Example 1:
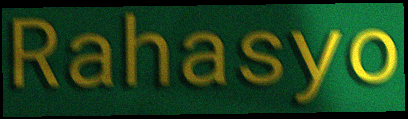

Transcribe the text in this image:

Rahasyo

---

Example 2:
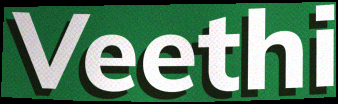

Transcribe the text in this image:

Veethi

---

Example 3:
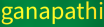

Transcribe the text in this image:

ganapathi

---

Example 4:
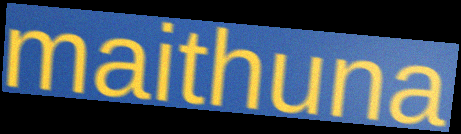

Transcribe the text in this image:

maithuna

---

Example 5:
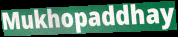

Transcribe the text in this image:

Mukhopaddhay